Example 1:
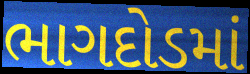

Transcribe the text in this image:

ભાગદોડમાં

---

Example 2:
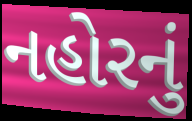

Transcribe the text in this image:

નહોરનું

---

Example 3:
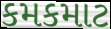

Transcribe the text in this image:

કમકમાટ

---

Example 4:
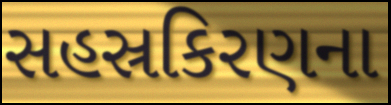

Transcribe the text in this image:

સહસ્રકિરણના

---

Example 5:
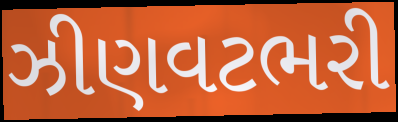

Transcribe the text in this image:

ઝીણવટભરી